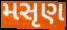
મસૃણ